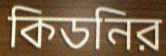
কিডনির